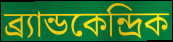
ব্র্যান্ডকেন্দ্রিক